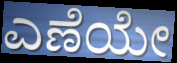
ಎಣೆಯೇ